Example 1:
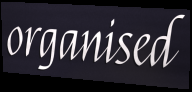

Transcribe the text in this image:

organised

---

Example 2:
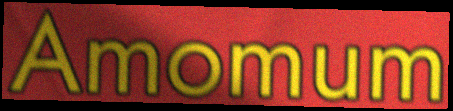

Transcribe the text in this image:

Amomum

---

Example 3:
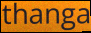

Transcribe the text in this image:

thanga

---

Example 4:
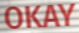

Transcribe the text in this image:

OKAY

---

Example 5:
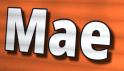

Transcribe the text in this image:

Mae